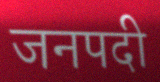
जनपदी